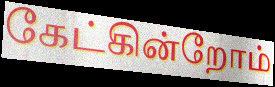
கேட்கின்றோம்